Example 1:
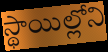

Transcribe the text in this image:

స్థాయిల్లోని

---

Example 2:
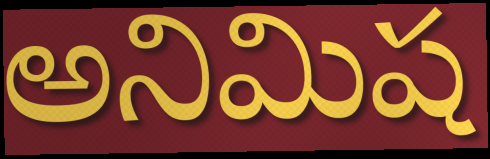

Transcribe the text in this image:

అనిమిష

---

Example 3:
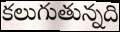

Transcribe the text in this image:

కలుగుతున్నది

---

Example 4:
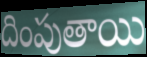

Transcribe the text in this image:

దింపుతాయి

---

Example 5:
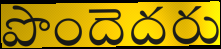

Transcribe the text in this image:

పొందెదరు